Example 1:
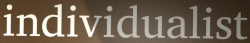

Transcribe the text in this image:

individualist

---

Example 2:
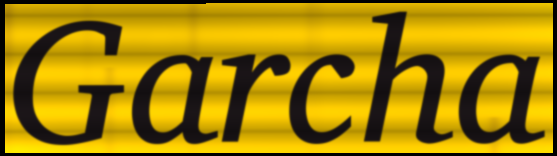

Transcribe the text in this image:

Garcha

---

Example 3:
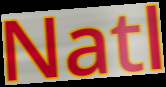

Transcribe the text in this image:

Natl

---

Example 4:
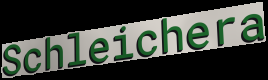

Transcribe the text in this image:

Schleichera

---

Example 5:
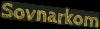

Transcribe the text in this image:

Sovnarkom